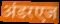
अंडरएज